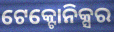
ଟେକ୍ଟୋନିକ୍ସର